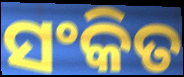
ସଂକିତ